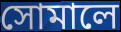
সোমালে